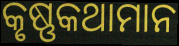
କୃଷ୍ଣକଥାମାନ